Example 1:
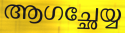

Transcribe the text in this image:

ആഗച്ഛേയ്യ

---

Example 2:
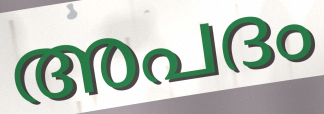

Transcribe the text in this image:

അപദം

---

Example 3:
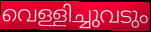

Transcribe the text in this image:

വെള്ളിച്ചുവടും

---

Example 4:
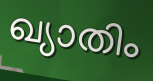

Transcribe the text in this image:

ഖ്യാതിം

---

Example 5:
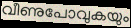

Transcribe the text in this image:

വീണുപോവുകയും